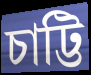
চাট্টি